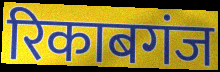
रिकाबगंज